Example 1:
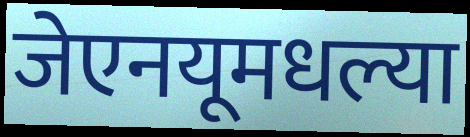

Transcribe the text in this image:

जेएनयूमधल्या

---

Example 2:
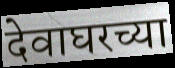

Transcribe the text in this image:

देवाघरच्या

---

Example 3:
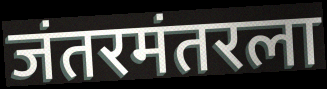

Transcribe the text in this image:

जंतरमंतरला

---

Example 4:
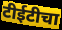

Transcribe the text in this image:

टीईटीचा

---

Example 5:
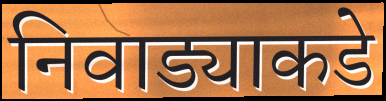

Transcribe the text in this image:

निवाड्याकडे